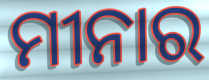
ମୀନାର